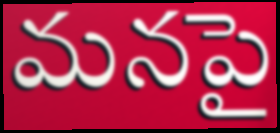
మనపై